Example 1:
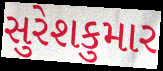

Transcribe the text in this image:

સુરેશકુમાર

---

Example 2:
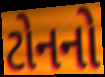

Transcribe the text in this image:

ટોનનો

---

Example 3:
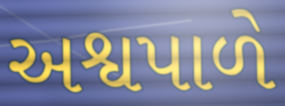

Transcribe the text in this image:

અશ્વપાળે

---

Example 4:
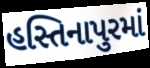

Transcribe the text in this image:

હસ્તિનાપુરમાં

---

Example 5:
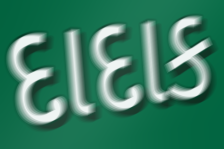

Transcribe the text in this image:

દાદાક